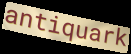
antiquark